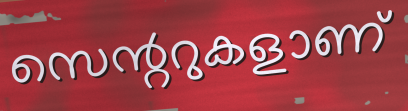
സെന്ററുകളാണ്